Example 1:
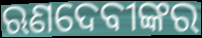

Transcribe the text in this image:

ଋଣଦେବୀଙ୍କର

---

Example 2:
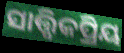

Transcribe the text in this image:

ସାତ୍ତ୍ଵିକପ୍ରିୟ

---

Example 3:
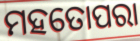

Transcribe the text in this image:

ମହତୋପରା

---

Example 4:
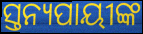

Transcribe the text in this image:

ସ୍ତନ୍ୟପାୟୀଙ୍କ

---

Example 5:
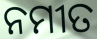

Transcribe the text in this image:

ନମୀତ